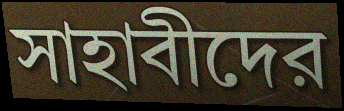
সাহাবীদের